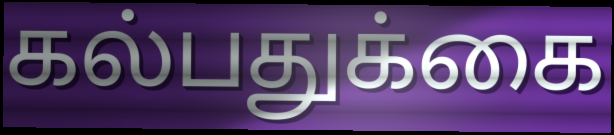
கல்பதுக்கை